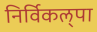
निर्विकल्पा